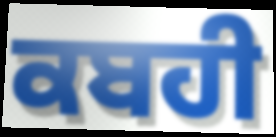
ਕਬਹੀ